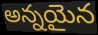
అన్నయైన